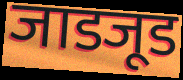
जाडजूड